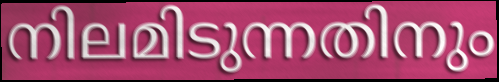
നിലമിടുന്നതിനും